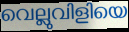
വെല്ലുവിളിയെ